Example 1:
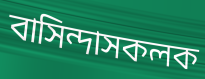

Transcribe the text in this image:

বাসিন্দাসকলক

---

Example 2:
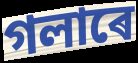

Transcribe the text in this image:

গলাৰে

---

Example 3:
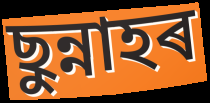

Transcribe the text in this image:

ছুন্নাহৰ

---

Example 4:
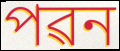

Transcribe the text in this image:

পৱন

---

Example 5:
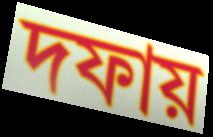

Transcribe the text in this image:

দফায়